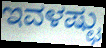
ಇವಳಷ್ಟು